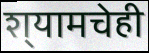
श्यामचेही